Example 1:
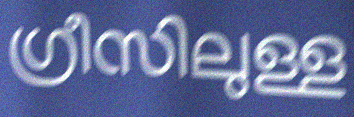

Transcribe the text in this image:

ഗ്രീസിലുള്ള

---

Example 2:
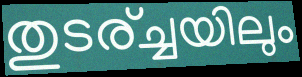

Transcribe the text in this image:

തുടര്ച്ചയിലും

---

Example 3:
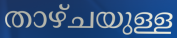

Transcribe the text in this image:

താഴ്ചയുള്ള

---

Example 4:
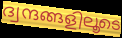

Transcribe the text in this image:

ദ്വന്ദങ്ങളിലൂടെ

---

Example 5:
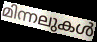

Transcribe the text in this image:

മിന്നലുകൾ